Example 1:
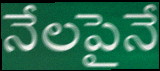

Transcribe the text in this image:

నేలపైనే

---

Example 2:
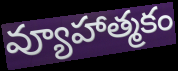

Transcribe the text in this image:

వ్యూహాత్మకం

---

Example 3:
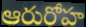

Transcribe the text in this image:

ఆరురోహ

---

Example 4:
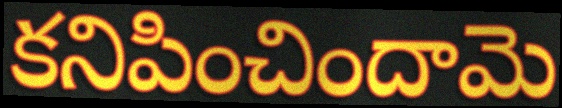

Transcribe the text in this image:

కనిపించిందామె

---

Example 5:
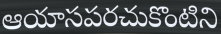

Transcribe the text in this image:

ఆయాసపరచుకొంటిని